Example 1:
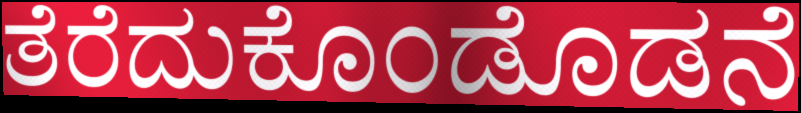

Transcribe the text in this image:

ತೆರೆದುಕೊಂಡೊಡನೆ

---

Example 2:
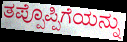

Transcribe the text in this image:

ತಪ್ಪೊಪ್ಪಿಗೆಯನ್ನು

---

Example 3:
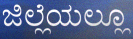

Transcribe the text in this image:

ಜಿಲ್ಲೆಯಲ್ಲೂ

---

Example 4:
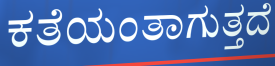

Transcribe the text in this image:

ಕತೆಯಂತಾಗುತ್ತದೆ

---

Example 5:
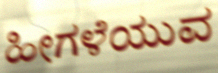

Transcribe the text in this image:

ಹೀಗಳೆಯುವ